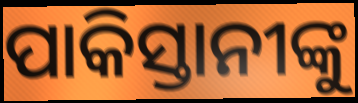
ପାକିସ୍ତାନୀଙ୍କୁ